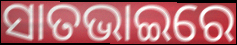
ସାତଭାଇରେ